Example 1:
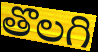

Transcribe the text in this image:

తొలగి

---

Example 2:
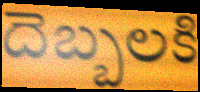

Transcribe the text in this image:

దెబ్బలకి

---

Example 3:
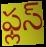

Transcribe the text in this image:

ఫ్లస్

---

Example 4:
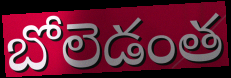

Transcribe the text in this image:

బోలెడంత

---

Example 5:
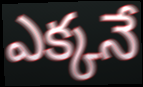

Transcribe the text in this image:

ఎక్కనే